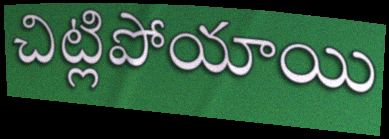
చిట్లిపోయాయి